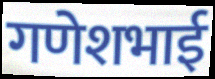
गणेशभाई